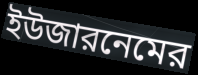
ইউজারনেমের